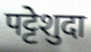
पट्टेशुदा